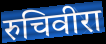
रुचिवीरा